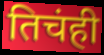
तिचंही